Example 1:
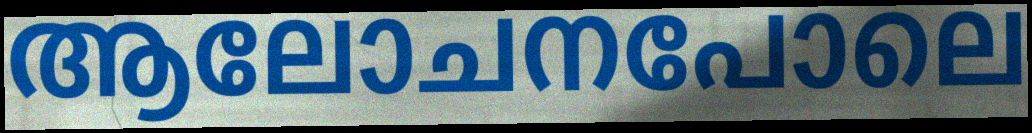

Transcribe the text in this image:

ആലോചനപോലെ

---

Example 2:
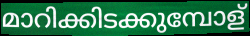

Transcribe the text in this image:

മാറിക്കിടക്കുമ്പോള്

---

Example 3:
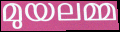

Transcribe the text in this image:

മുയലമ്മ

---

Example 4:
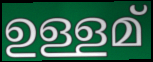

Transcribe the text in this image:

ഉള്ളമ്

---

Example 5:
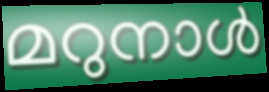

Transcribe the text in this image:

മറുനാൾ